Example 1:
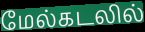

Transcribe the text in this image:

மேல்கடலில்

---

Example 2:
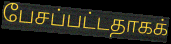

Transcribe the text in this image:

பேசப்பட்டதாகக்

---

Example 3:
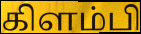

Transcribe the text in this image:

கிளம்பி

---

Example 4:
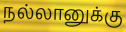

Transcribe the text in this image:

நல்லானுக்கு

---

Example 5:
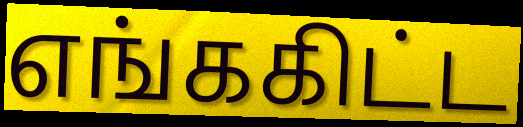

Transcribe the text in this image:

எங்ககிட்ட